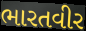
ભારતવીર